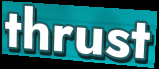
thrust